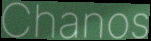
Chanos